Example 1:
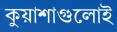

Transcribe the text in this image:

কুয়াশাগুলোই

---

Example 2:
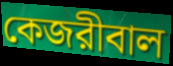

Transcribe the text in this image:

কেজরীবাল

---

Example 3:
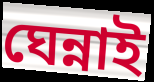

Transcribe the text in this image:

ঘেন্নাই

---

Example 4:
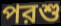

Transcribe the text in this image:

পরশু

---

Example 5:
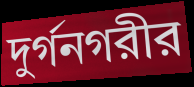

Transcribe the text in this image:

দুর্গনগরীর